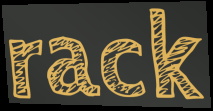
rack